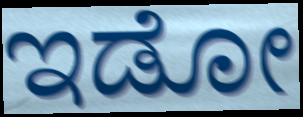
ಇಡೋ